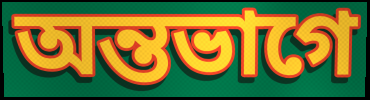
অন্তভাগে